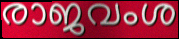
രാജവംശ